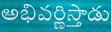
అభివర్ణిస్తాడు